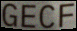
GECF